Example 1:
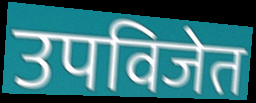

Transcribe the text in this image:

उपविजेत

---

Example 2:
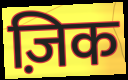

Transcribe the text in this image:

ज़िक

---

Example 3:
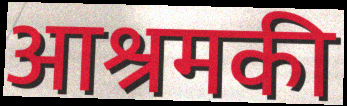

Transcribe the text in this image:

आश्रमकी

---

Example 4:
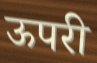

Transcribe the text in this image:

ऊपरी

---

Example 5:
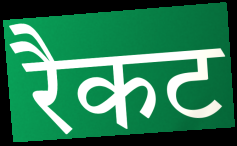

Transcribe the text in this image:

रैकट